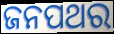
ଜନପଥର